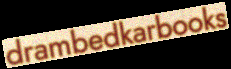
drambedkarbooks